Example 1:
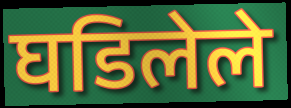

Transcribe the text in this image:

घडिलेले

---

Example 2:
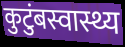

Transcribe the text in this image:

कुटुंबस्वास्थ्य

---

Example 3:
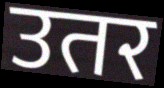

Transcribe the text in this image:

उतर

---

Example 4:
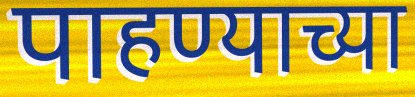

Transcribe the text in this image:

पाहण्याच्या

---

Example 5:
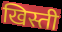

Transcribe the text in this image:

खिस्ती